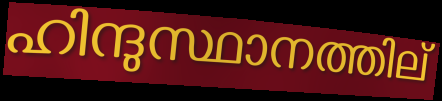
ഹിന്ദുസ്ഥാനത്തില്